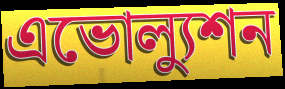
এভোল্যুশন